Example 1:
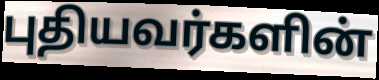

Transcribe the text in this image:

புதியவர்களின்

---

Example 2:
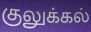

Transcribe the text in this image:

குலுக்கல்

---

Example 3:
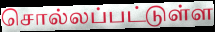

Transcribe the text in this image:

சொல்லப்பட்டுள்ள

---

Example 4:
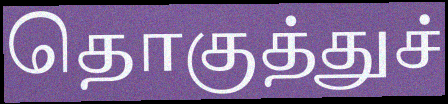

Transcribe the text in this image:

தொகுத்துச்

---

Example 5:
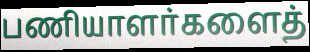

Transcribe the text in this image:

பணியாளர்களைத்